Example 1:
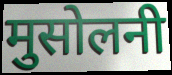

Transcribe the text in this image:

मुसोलनी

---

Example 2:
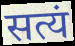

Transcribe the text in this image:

सत्यं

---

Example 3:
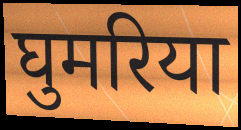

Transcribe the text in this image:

घुमरिया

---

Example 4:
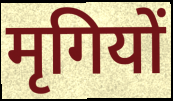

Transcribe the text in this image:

मृगियों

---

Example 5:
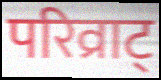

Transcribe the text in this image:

परिव्राट्